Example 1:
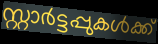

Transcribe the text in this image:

സ്റ്റാർട്ടപ്പുകൾക്ക്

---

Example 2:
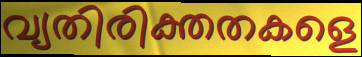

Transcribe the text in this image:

വ്യതിരിക്തതകളെ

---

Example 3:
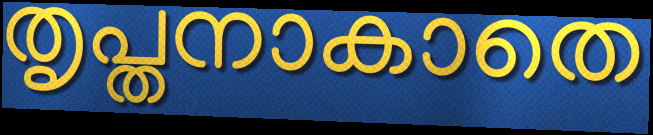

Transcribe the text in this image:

തൃപ്തനാകാതെ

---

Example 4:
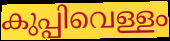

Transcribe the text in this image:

കുപ്പിവെള്ളം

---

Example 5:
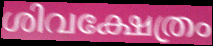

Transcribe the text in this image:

ശിവക്ഷേത്രം